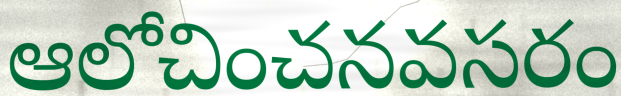
ఆలోచించనవసరం